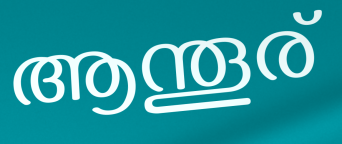
ആന്തൂര്